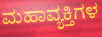
ಮಹಾವ್ಯಕ್ತಿಗಳ